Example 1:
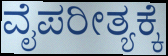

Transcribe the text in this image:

ವೈಪರೀತ್ಯಕ್ಕೆ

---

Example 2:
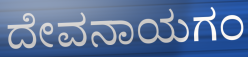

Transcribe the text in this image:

ದೇವನಾಯಗಂ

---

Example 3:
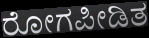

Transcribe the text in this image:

ರೋಗಪೀಡಿತ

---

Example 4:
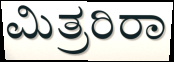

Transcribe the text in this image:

ಮಿತ್ರರಿರಾ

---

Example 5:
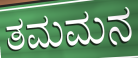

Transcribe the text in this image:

ತಮಮನ